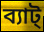
ব্যাট্